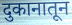
दुकानातून